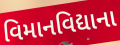
વિમાનવિદ્યાના